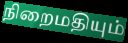
நிறைமதியும்